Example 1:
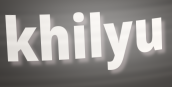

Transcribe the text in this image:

khilyu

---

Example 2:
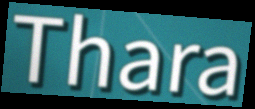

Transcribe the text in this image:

Thara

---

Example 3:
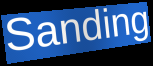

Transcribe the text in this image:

Sanding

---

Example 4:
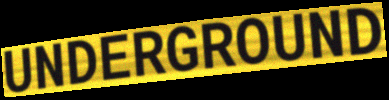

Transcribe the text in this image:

UNDERGROUND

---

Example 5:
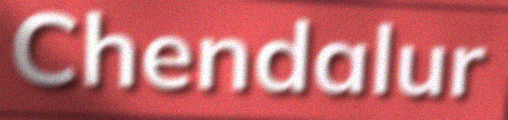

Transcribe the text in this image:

Chendalur